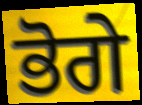
ਭੋਗੇ